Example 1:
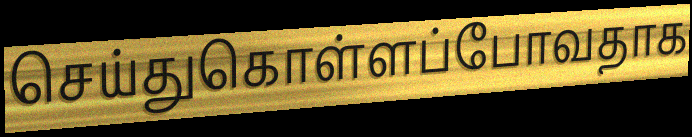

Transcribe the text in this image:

செய்துகொள்ளப்போவதாக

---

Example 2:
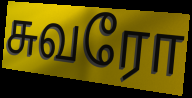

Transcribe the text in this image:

சுவரோ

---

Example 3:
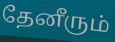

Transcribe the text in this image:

தேனீரும்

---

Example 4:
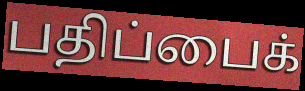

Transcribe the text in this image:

பதிப்பைக்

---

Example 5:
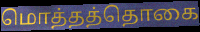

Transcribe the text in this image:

மொத்தத்தொகை